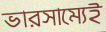
ভারসাম্যেই